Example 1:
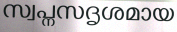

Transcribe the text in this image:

സ്വപ്നസദൃശമായ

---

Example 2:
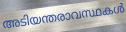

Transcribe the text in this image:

അടിയന്തരാവസ്ഥകൾ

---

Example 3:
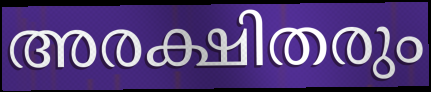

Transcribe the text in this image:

അരക്ഷിതരും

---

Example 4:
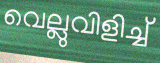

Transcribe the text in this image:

വെല്ലുവിളിച്ച്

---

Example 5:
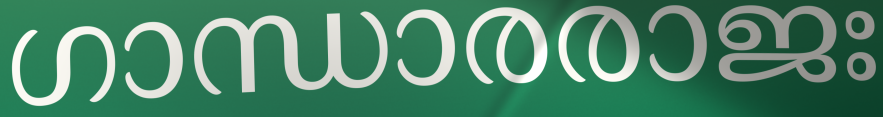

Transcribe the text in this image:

ഗാന്ധാരരാജഃ